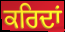
ਕਰਿਦਾਂ